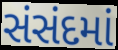
સંસંદમાં